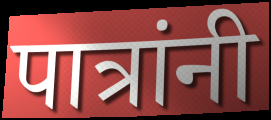
पात्रांनी